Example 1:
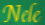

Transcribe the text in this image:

Nele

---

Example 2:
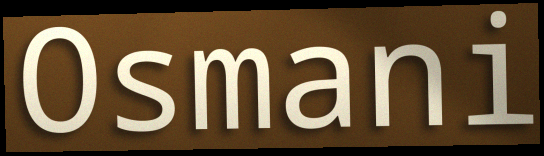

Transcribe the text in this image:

Osmani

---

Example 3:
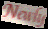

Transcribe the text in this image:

Newly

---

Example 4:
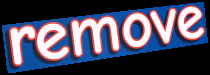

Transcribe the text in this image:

remove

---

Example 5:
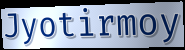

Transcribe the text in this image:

Jyotirmoy